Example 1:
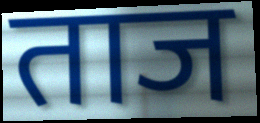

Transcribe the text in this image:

ताज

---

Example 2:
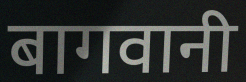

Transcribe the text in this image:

बागवानी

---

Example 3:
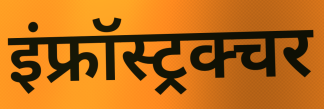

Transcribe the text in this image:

इंफ्रॉस्ट्रक्चर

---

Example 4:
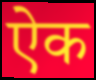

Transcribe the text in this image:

ऐक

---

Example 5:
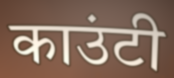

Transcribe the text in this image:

काउंटी